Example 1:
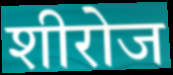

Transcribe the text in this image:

शीरोज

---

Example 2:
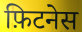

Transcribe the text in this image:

फ़िटनेस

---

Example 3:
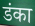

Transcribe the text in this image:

डंका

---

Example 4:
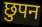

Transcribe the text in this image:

छुपन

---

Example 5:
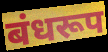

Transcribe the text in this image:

बंधरूप